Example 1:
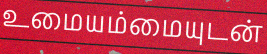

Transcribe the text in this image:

உமையம்மையுடன்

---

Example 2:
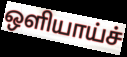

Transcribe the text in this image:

ஒளியாய்ச்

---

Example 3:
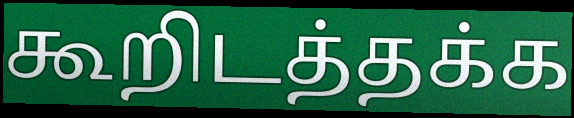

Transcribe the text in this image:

கூறிடத்தக்க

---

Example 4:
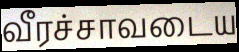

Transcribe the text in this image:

வீரச்சாவடைய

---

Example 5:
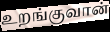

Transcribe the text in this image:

உறங்குவான்